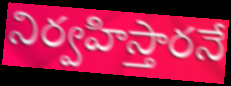
నిర్వహిస్తారనే